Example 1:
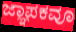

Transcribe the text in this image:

ಜ್ಞಾಪಕವೂ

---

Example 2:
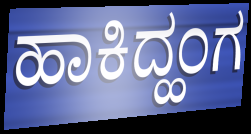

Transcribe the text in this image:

ಹಾಕಿದ್ಹಂಗ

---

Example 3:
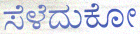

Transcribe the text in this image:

ಸೆಳೆದುಕೋ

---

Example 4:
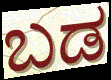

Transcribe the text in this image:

ಬಡ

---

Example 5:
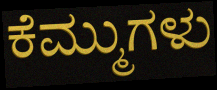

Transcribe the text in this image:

ಕೆಮ್ಮುಗಳು